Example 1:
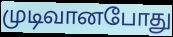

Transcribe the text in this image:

முடிவானபோது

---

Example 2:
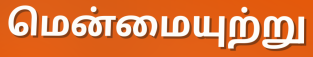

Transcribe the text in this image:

மென்மையுற்று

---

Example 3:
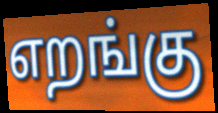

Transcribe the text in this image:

எறங்கு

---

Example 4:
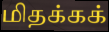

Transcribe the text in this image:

மிதக்கக்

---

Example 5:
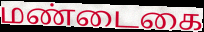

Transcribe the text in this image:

மண்டைகை